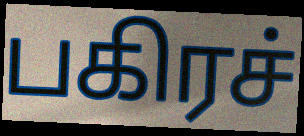
பகிரச்